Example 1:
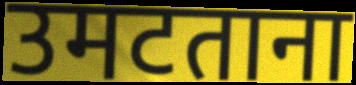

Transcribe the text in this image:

उमटताना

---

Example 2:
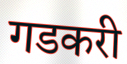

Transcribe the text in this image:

गडकरी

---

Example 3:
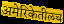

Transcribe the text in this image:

अमेरिकेतीलच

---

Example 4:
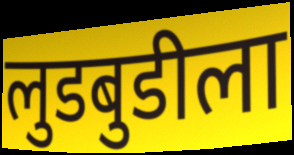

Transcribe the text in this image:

लुडबुडीला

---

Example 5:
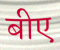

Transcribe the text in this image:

बीए